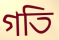
গতি